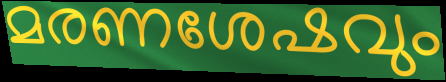
മരണശേഷവും